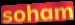
soham